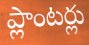
ప్లాంటర్లు